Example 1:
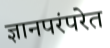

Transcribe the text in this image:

ज्ञानपरंपरेत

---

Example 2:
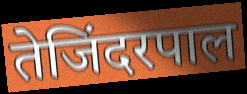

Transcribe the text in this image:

तेजिंदरपाल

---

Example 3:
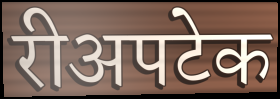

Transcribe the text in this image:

रीअपटेक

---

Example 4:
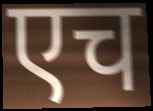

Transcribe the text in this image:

एच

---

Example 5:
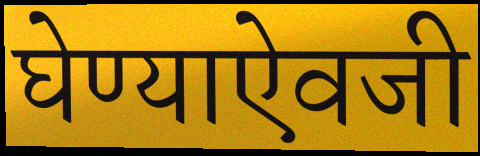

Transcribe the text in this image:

घेण्याऐवजी